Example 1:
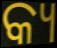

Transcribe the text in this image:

କ୍ୟ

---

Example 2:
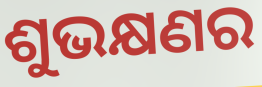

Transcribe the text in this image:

ଶୁଭକ୍ଷଣର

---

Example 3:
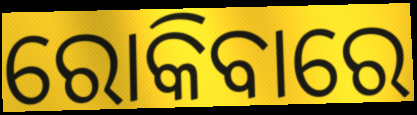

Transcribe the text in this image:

ରୋକିବାରେ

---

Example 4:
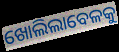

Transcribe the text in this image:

ଖୋଲିଲାବେଳକୁ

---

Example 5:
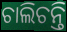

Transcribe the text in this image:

ଚାଲିଚନ୍ତି